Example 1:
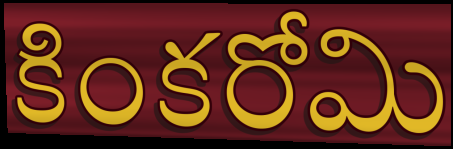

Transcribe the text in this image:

కింకరోమి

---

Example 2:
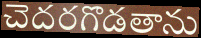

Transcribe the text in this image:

చెదరగొడతాను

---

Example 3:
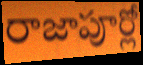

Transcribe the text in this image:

రాజాపూర్లో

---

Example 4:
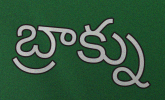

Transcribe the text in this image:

బ్రాక్ను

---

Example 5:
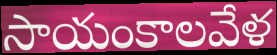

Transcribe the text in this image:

సాయంకాలవేళ